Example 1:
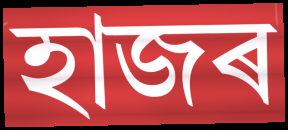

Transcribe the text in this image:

হাজৰ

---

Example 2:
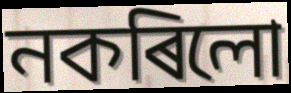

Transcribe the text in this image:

নকৰিলো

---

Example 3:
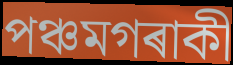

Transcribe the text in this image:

পঞ্চমগৰাকী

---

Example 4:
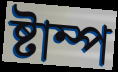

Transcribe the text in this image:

ষ্টাম্প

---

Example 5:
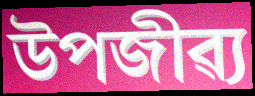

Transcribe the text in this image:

উপজীৱ্য